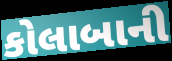
કોલાબાની